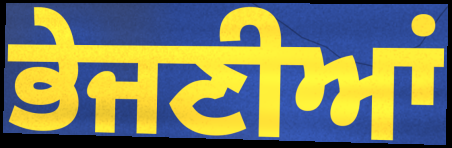
ਭੇਜਣੀਆਂ